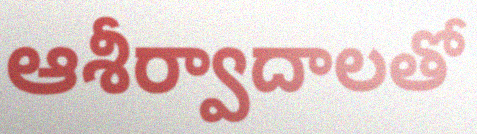
ఆశీర్వాదాలతో